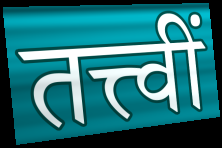
तत्त्वीं